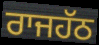
ਰਾਜਹੱਠ